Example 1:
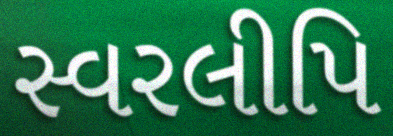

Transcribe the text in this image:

સ્વરલીપિ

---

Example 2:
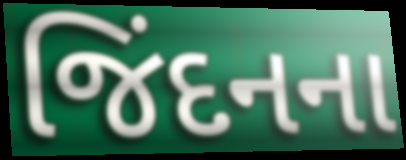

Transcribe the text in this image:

જિંદનના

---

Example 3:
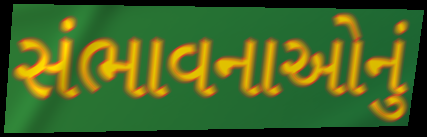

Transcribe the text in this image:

સંભાવનાઓનું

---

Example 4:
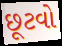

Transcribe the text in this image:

છૂટવો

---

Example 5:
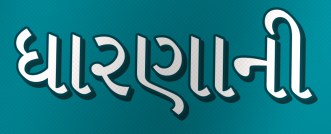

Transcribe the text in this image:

ધારણાની